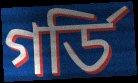
গর্ডি